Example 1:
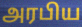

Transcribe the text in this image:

அரபிய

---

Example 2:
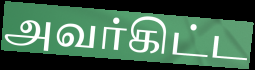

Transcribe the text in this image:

அவர்கிட்ட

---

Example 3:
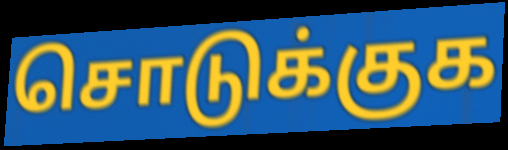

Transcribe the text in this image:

சொடுக்குக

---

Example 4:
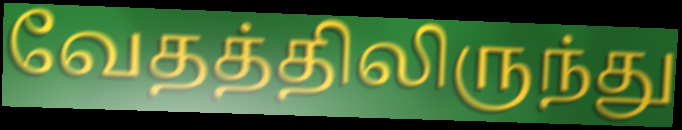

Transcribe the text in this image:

வேதத்திலிருந்து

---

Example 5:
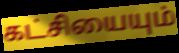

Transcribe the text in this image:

கட்சியையும்